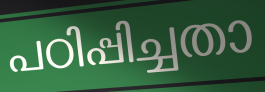
പഠിപ്പിച്ചതാ